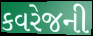
કવરેજની